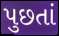
પુછતાં